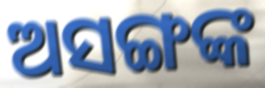
ଅସଙ୍ଗଙ୍କ